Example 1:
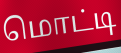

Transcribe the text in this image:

மொட்டி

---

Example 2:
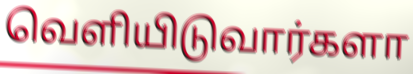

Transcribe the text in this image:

வெளியிடுவார்களா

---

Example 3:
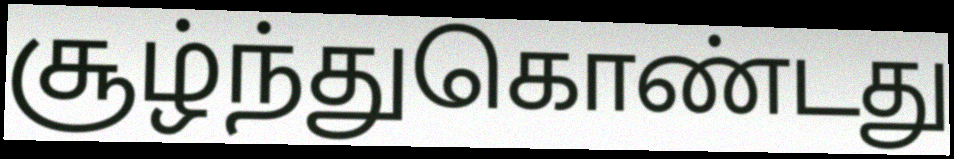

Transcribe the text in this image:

சூழ்ந்துகொண்டது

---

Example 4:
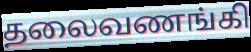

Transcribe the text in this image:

தலைவணங்கி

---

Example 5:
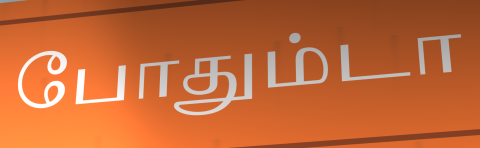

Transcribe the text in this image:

போதும்டா